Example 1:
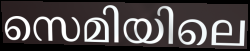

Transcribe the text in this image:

സെമിയിലെ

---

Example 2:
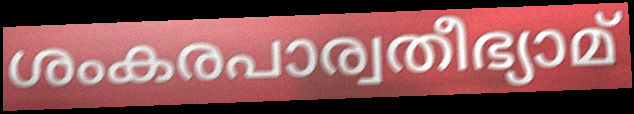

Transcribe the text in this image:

ശംകരപാര്വതീഭ്യാമ്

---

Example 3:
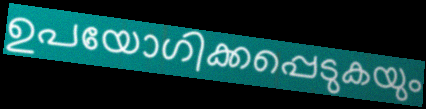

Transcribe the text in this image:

ഉപയോഗിക്കപ്പെടുകയും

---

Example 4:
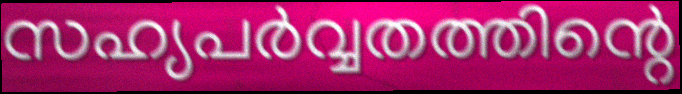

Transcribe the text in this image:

സഹ്യപർവ്വതത്തിന്റെ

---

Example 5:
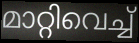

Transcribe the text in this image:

മാറ്റിവെച്ച്